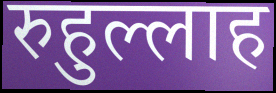
रुहुल्लाह